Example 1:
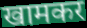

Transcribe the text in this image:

खामकर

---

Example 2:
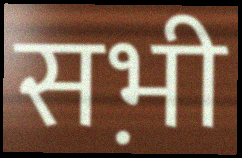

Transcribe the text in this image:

सभ़ी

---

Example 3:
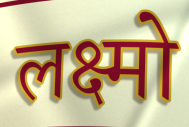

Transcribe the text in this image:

लक्ष्मो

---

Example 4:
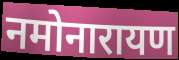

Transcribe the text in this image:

नमोनारायण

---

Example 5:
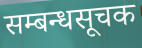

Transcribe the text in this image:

सम्बन्धसूचक